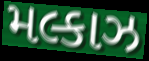
મલ્કાઝ